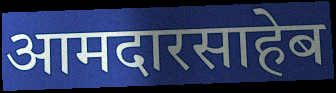
आमदारसाहेब